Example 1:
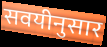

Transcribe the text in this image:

सवयीनुसार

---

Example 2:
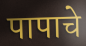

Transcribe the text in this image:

पापाचे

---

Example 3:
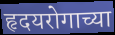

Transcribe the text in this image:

हृदयरोगाच्या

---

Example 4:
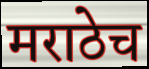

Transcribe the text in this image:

मराठेच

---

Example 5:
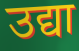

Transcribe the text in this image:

उद्या